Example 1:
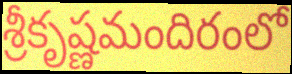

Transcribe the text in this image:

శ్రీకృష్ణమందిరంలో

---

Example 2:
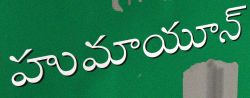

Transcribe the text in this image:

హుమాయూన్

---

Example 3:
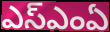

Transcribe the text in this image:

ఎస్ఎంఏ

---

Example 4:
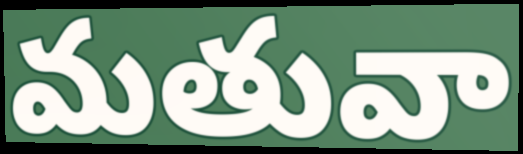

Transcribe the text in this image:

మతువా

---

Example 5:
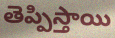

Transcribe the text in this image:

తెప్పిస్తాయి